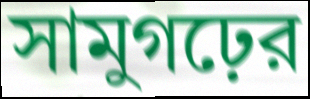
সামুগঢ়ের